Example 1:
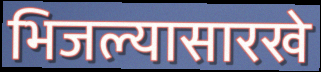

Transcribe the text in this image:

भिजल्यासारखे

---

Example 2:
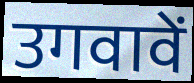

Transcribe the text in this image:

उगवावें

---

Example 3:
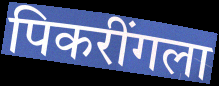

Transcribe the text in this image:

पिकरींगला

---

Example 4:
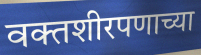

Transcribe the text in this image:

वक्तशीरपणाच्या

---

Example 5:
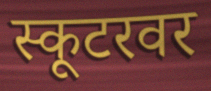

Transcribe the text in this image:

स्कूटरवर